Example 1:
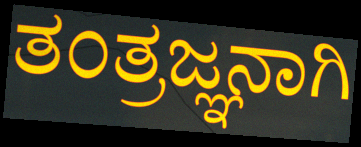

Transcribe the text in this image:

ತಂತ್ರಜ್ಞನಾಗಿ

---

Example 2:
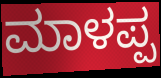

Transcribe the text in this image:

ಮಾಳಪ್ಪ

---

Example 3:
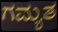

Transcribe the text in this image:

ಗಮ್ಯತ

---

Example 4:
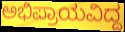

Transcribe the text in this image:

ಅಭಿಪ್ರಾಯವಿದ್ದ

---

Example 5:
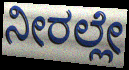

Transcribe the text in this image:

ನೀರಲ್ಲೇ